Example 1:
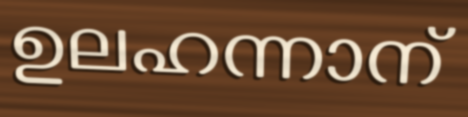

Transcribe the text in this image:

ഉലഹന്നാന്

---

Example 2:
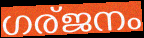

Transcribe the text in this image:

ഗര്ജനം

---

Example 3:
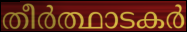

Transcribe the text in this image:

തീർത്ഥാടകർ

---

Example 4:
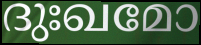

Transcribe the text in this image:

ദുഃഖമോ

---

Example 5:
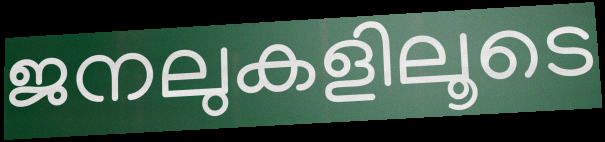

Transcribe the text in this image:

ജനലുകളിലൂടെ